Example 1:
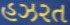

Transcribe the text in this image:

હઝરત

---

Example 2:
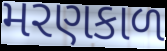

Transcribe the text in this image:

મરણકાળ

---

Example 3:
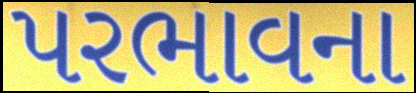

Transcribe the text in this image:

પરભાવના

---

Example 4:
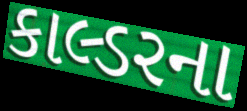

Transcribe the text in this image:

કાલ્ડરના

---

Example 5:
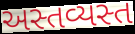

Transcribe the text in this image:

અસ્તવ્યસ્ત